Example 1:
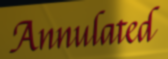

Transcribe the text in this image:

Annulated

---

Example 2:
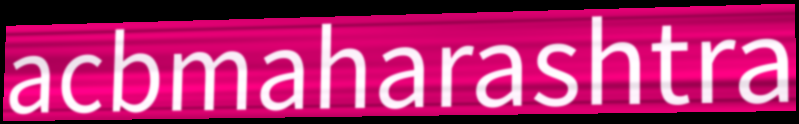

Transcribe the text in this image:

acbmaharashtra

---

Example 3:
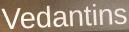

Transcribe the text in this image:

Vedantins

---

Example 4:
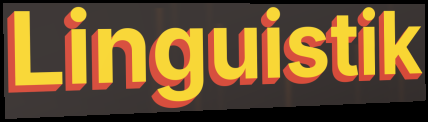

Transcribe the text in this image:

Linguistik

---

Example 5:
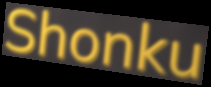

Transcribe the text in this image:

Shonku